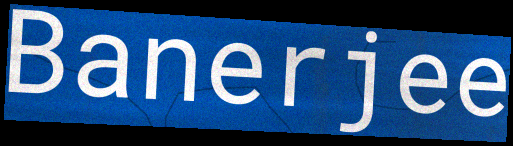
Banerjee